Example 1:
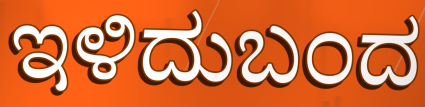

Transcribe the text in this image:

ಇಳಿದುಬಂದ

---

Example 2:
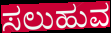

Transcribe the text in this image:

ಸಲುಹುವ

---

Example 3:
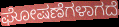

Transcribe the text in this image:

ಘೋಷಣೆಗಳಾಗದೆ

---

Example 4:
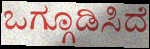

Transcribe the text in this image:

ಒಗ್ಗೂಡಿಸಿದೆ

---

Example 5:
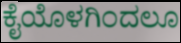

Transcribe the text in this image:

ಕೈಯೊಳಗಿಂದಲೂ